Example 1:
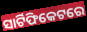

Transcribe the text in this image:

ସାର୍ଟିଫିକେଟରେ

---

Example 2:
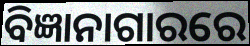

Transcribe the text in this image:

ବିଜ୍ଞାନାଗାରରେ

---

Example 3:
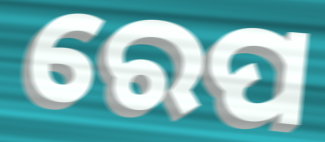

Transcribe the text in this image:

ରେପ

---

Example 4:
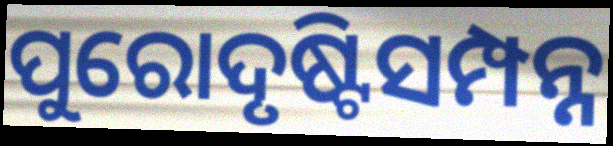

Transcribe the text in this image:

ପୁରୋଦୃଷ୍ଟିସମ୍ପନ୍ନ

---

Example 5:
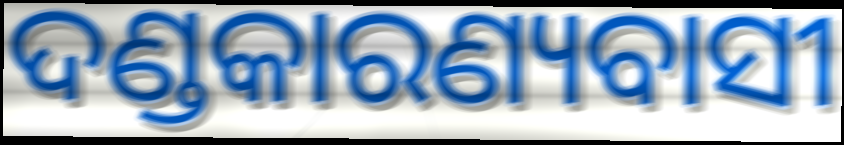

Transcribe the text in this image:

ଦଣ୍ଡକାରଣ୍ୟବାସୀ